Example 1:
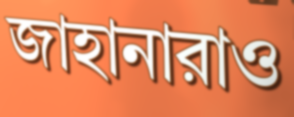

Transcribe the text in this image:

জাহানারাও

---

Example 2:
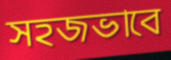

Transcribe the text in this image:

সহজভাবে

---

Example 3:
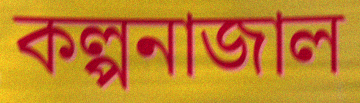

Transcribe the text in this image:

কল্পনাজাল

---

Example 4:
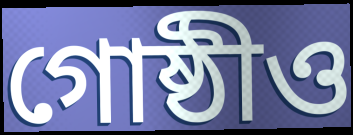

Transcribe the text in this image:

গোষ্ঠীও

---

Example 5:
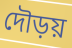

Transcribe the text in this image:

দৌড়য়